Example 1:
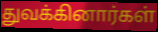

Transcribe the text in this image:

துவக்கினார்கள்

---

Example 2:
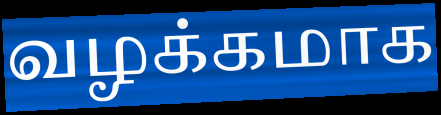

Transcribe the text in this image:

வழக்கமாக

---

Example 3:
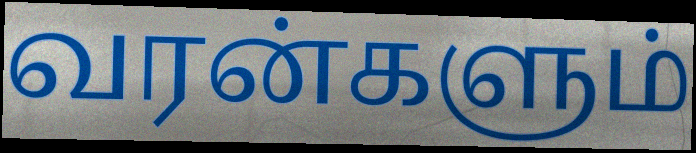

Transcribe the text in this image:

வரன்களும்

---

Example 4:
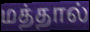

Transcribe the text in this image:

மத்தால்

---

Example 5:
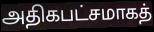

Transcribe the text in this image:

அதிகபட்சமாகத்